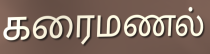
கரைமணல்